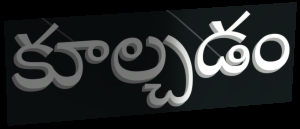
కూల్చడం